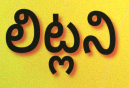
లిట్లని